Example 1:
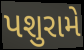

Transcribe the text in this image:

પશુરામે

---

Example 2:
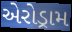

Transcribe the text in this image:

એરોડ્રામ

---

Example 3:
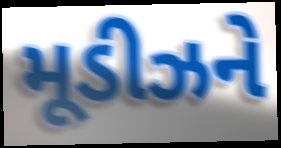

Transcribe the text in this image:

મૂડીઝને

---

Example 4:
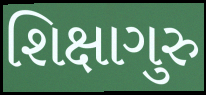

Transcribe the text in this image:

શિક્ષાગુરુ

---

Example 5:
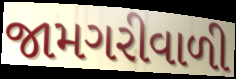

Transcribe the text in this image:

જામગરીવાળી